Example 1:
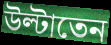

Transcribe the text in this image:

উল্টাতেন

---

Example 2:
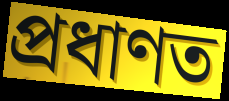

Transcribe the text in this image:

প্রধাণত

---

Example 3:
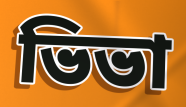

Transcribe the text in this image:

ভিভা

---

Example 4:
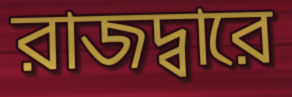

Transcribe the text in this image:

রাজদ্বারে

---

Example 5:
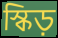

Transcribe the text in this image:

স্কিড়